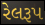
રેલરૂપ